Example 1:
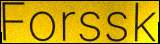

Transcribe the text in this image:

Forssk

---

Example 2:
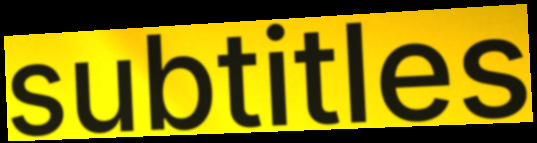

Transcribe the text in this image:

subtitles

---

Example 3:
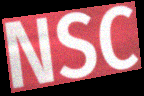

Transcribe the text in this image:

NSC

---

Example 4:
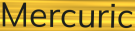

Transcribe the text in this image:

Mercuric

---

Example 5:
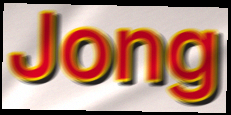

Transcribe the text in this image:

Jong